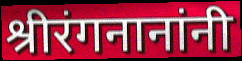
श्रीरंगनानांनी